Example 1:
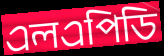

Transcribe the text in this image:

এলএপিডি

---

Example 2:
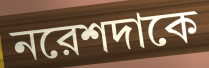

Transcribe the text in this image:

নরেশদাকে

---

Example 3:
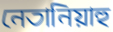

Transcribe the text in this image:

নেতানিয়াহু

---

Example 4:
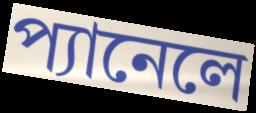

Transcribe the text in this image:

প্যানেলে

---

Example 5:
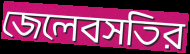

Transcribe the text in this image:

জেলেবসতির